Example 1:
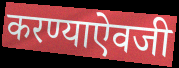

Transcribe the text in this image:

करण्याऐवजी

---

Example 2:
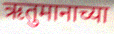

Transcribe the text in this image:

ऋतुमानाच्या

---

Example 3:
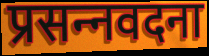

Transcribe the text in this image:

प्रसन्नवदना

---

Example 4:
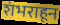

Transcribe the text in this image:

शंभराहून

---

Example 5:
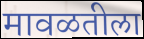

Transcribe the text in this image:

मावळतीला